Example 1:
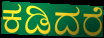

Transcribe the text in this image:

ಕಡಿದರೆ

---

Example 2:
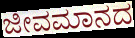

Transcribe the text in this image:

ಜೀವಮಾನದ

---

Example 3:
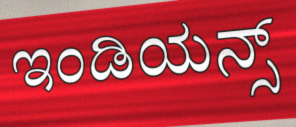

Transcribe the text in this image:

ಇಂಡಿಯನ್ಸ್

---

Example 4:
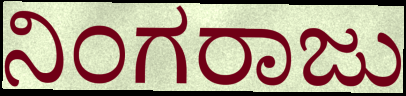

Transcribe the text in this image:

ನಿಂಗರಾಜು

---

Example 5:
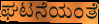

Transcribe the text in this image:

ಘಟನೆಯಂತೆ